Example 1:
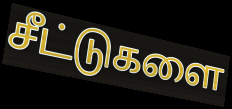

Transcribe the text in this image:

சீட்டுகளை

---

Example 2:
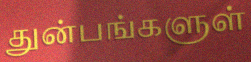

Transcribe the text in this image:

துன்பங்களுள்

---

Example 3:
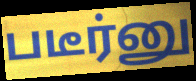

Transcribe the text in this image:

படீர்னு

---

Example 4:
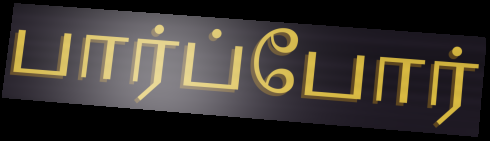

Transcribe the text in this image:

பார்ப்போர்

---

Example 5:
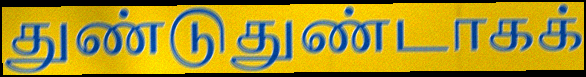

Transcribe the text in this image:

துண்டுதுண்டாகக்